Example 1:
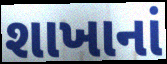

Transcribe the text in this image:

શાખાનાં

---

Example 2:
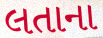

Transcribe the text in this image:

લતાના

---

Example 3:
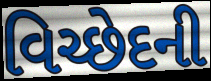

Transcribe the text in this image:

વિચ્છેદની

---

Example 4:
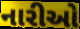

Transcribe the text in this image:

નારીઓ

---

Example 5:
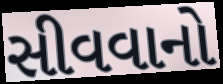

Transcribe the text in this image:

સીવવાનો